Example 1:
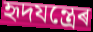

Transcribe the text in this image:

হৃদযন্ত্ৰেৰ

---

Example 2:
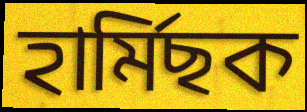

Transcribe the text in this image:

হাৰ্মিছক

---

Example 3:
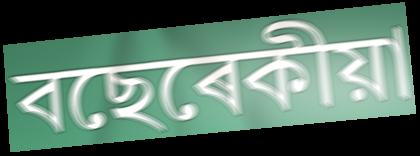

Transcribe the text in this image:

বছেৰেকীয়া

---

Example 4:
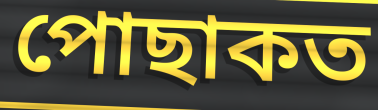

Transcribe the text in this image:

পোছাকত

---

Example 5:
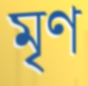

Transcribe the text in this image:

মৃণ